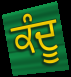
ਕੰਦੂ